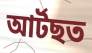
আৰ্টছত